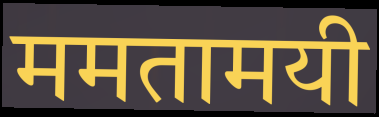
ममतामयी